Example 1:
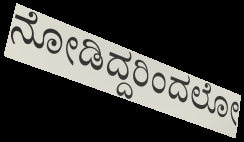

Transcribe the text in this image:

ನೋಡಿದ್ದರಿಂದಲೋ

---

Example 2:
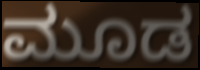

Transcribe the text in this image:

ಮೂಡ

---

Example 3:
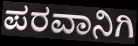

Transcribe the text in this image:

ಪರವಾನಿಗಿ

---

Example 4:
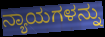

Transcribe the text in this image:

ನ್ಯಾಯಗಳನ್ನು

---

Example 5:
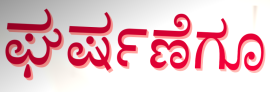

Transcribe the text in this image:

ಘರ್ಷಣೆಗೂ